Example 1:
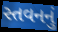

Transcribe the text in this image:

સ્તવનનું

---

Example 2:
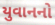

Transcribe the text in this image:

યુવાનનો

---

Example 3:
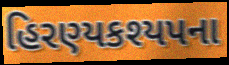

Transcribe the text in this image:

હિરણ્યકશ્યપના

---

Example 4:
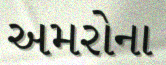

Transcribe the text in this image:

અમરોના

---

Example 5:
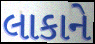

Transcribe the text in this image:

લાકાને